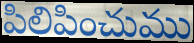
పిలిపించుము